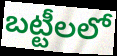
బట్టీలలో